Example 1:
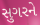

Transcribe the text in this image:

સુગરને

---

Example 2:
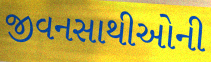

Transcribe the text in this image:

જીવનસાથીઓની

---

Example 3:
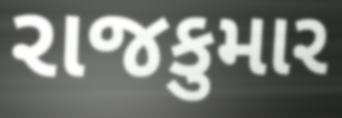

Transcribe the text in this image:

રાજકુમાર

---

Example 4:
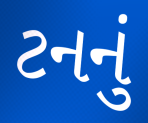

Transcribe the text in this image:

ટનનું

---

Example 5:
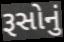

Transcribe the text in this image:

રૂસોનું